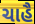
ચાહૈ